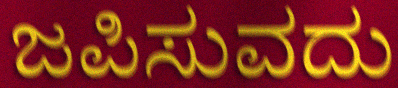
ಜಪಿಸುವದು